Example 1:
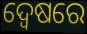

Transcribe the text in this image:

ଦ୍ୱେଷରେ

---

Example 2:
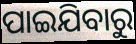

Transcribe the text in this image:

ପାଇଯିବାରୁ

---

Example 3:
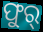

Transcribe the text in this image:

ଫୁର୍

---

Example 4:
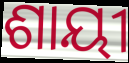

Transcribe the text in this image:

ଶାୟୀ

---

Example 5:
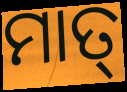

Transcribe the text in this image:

ମାତ୍